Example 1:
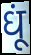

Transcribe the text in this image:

धूं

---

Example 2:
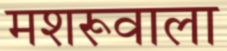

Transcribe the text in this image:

मशरूवाला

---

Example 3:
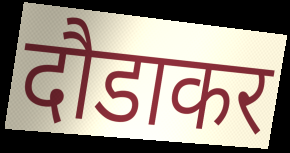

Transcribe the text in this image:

दौडाकर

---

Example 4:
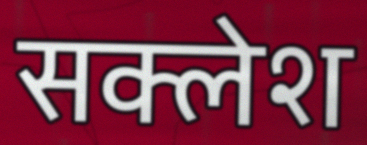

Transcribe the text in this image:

सक्लेश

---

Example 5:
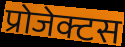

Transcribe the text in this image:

प्रोजेक्टस